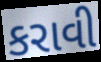
કરાવી